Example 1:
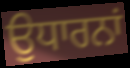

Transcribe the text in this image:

ਉਧਾਰਨਾਂ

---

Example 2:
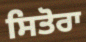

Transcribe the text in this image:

ਸਿਤੋਰਾ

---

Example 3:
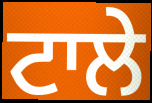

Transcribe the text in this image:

ਟਾਲੇ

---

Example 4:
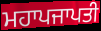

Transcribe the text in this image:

ਮਹਾਪਜਾਪਤੀ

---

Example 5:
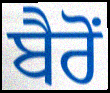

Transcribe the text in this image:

ਬੈਰੋਂ